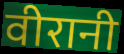
वीरानी